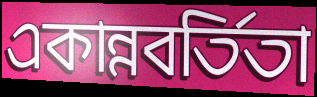
একান্নবর্তিতা